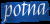
potna